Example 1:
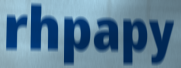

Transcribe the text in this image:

rhpapy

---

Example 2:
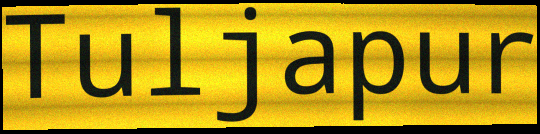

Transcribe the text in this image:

Tuljapur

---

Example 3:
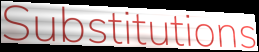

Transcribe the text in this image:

Substitutions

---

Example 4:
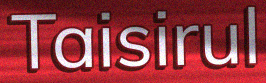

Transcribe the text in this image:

Taisirul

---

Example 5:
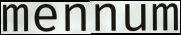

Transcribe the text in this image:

mennum